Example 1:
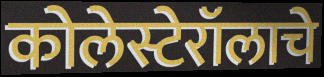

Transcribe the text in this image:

कोलेस्टेरॉलाचे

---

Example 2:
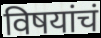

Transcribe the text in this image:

विषयांचं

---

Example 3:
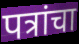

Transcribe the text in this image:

पत्रांचा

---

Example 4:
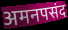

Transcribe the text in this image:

अमनपसंद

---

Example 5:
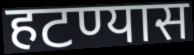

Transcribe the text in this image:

हटण्यास